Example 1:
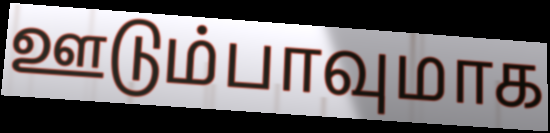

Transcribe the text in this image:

ஊடும்பாவுமாக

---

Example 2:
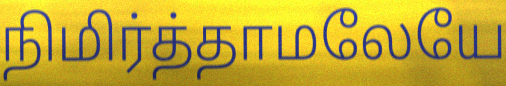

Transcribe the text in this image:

நிமிர்த்தாமலேயே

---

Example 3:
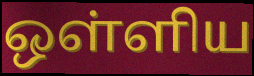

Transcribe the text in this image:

ஒள்ளிய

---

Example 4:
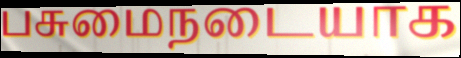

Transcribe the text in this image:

பசுமைநடையாக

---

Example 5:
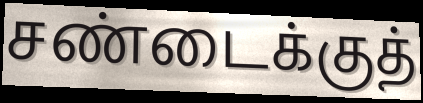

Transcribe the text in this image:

சண்டைக்குத்